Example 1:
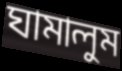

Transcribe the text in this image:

ঘামালুম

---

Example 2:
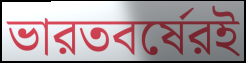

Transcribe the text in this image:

ভারতবর্ষেরই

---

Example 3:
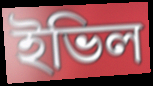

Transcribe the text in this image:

ইভিল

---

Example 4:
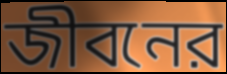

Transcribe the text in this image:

জীবনের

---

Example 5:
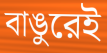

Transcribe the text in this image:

বাঙুরেই